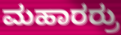
ಮಹಾರರ್ರು